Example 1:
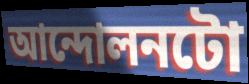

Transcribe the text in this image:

আন্দোলনটো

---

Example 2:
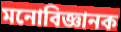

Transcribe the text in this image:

মনোবিজ্ঞানক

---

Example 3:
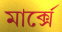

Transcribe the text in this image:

মাৰ্ক্সে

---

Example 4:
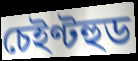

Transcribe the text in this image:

চেইণ্টহুড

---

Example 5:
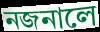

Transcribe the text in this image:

নজনালে